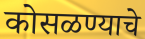
कोसळण्याचे